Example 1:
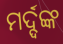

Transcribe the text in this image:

ମର୍ଦ୍ଦଙ୍କ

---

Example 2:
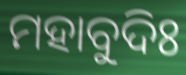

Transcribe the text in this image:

ମହାବୁଦିଃ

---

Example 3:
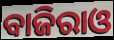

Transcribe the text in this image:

ବାଜିରାଓ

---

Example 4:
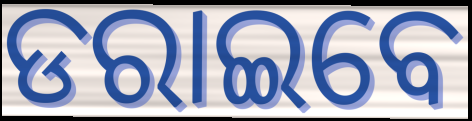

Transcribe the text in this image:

ଡରାଇବେ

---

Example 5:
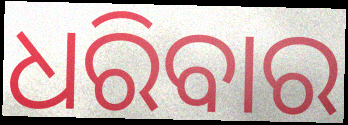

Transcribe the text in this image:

ଧରିବାର